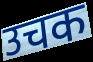
उचक